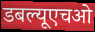
डबल्यूएचओ